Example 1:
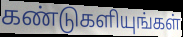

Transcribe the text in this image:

கண்டுகளியுங்கள்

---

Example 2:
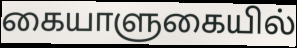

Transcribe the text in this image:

கையாளுகையில்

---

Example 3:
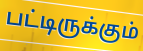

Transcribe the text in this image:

பட்டிருக்கும்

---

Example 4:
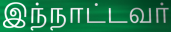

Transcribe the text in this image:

இந்நாட்டவர்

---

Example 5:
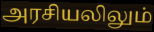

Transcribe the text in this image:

அரசியலிலும்